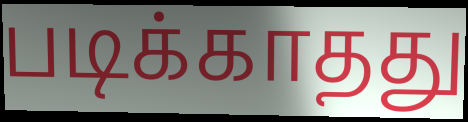
படிக்காதது